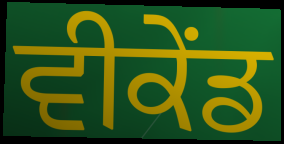
ਵੀਕੇਂਡ